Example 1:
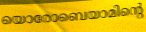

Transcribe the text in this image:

യൊരോബെയാമിന്റെ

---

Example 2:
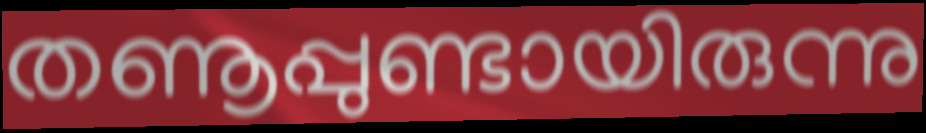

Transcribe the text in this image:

തണൂപ്പുണ്ടായിരുന്നു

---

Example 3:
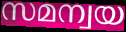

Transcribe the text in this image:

സമന്വയ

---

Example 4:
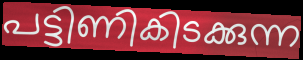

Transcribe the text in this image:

പട്ടിണികിടക്കുന്ന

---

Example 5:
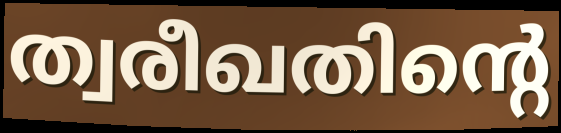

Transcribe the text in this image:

ത്വരീഖതിന്റെ